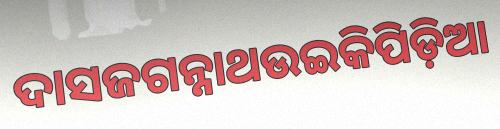
ଦାସଜଗନ୍ନାଥଉଇକିପିଡ଼ିଆ